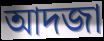
আদজা